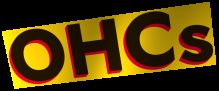
OHCs